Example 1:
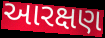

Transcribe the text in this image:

આરક્ષણ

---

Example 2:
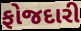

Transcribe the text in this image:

ફોજદારી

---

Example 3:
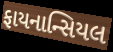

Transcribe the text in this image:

ફાયનાન્સિયલ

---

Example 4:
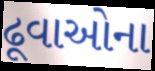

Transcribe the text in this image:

ઢૂવાઓના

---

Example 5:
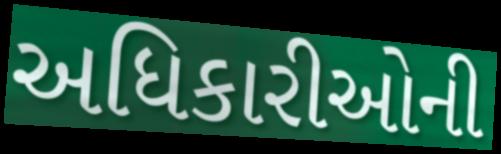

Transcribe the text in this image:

અધિકારીઓની